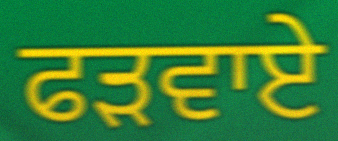
ਫੜਵਾਏ